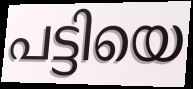
പട്ടിയെ